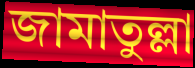
জামাতুল্লা